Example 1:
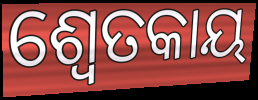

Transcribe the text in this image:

ଶ୍ବେତକାୟ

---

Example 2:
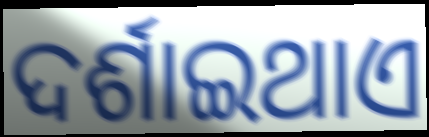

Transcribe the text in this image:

ଦର୍ଶାଇଥାଏ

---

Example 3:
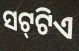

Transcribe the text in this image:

ସଟ୍‍ଟିଏ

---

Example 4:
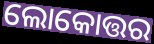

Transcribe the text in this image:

ଲୋକୋତ୍ତର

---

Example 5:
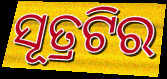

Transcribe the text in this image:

ସୂତ୍ରଟିର